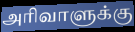
அரிவாளுக்கு